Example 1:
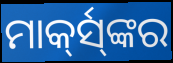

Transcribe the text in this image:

ମାର୍କ୍‍ସ୍‍ଙ୍କର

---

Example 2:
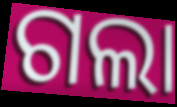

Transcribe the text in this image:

ଗଲା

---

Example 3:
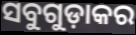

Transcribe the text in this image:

ସବୁଗୁଡ଼ାକର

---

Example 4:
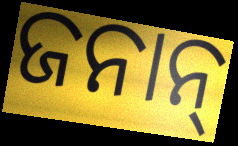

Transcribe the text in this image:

ଜନାନ୍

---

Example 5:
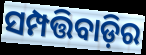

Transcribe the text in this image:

ସମ୍ପତ୍ତିବାଡ଼ିର